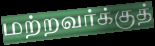
மற்றவர்க்குத்